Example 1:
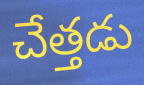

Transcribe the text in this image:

చేత్తడు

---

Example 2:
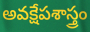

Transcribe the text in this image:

అవక్షేపశాస్త్రం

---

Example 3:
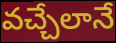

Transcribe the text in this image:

వచ్చేలానే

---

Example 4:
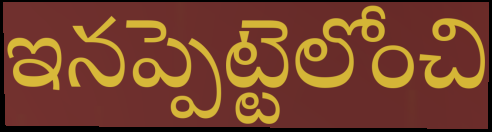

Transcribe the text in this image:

ఇనప్పెట్టెలోంచి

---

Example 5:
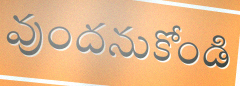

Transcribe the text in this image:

వుందనుకోండి